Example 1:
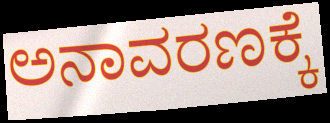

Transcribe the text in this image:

ಅನಾವರಣಕ್ಕೆ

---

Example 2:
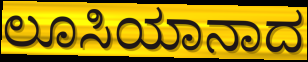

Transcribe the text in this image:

ಲೂಸಿಯಾನಾದ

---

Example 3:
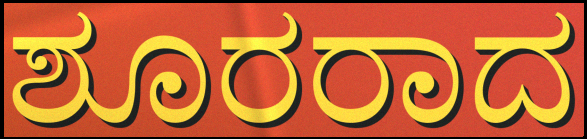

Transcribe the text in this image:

ಶೂರರಾದ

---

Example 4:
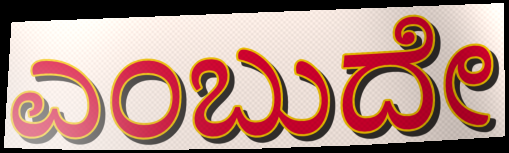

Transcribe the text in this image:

ಎಂಬುದೇ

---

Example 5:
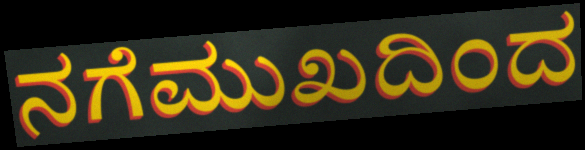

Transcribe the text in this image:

ನಗೆಮುಖದಿಂದ